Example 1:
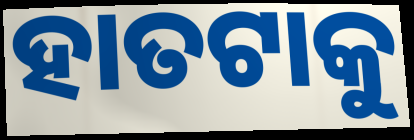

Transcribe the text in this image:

ହାତଟାକୁ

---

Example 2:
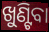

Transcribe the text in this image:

ଖୁଣ୍ଟିବା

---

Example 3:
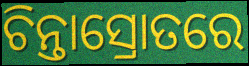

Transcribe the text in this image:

ଚିନ୍ତାସ୍ରୋତରେ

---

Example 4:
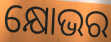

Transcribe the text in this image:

କ୍ଷୋଭର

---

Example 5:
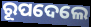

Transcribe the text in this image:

ରୂପଦେଲେ